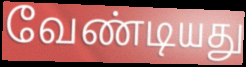
வேண்டியது